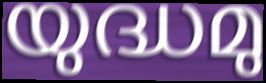
യുദ്ധമു